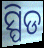
ସ୍ପିଡ